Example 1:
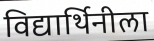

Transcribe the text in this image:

विद्यार्थिनीला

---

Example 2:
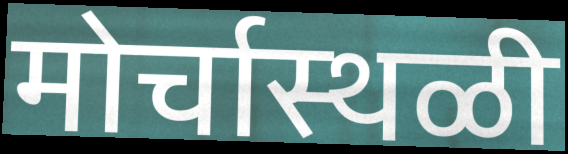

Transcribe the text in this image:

मोर्चास्थळी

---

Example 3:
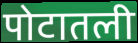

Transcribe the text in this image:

पोटातली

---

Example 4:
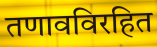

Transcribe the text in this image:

तणावविरहित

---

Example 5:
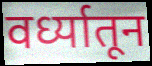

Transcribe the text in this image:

वर्ध्यातून